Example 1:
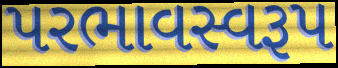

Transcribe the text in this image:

પરભાવસ્વરૂપ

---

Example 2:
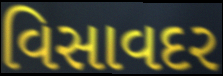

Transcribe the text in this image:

વિસાવદર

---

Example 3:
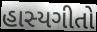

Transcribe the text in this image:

હાસ્યગીતો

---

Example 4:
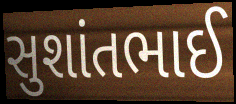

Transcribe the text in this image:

સુશાંતભાઈ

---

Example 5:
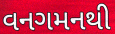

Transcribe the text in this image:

વનગમનથી